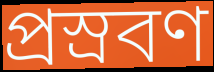
প্রস্রবণ